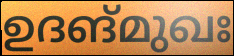
ഉദങ്മുഖഃ